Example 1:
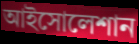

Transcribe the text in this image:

আইসোলেশান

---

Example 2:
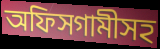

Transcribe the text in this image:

অফিসগামীসহ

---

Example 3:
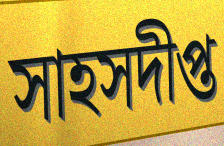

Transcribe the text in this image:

সাহসদীপ্ত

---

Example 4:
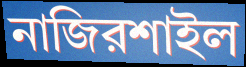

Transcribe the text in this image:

নাজিরশাইল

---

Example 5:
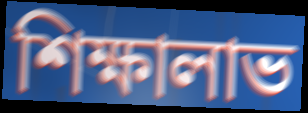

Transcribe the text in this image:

শিক্ষালাভ